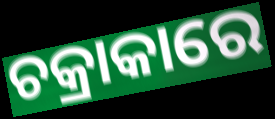
ଚକ୍ରାକାରେ